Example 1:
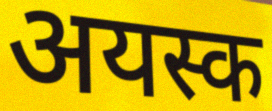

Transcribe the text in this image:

अयस्क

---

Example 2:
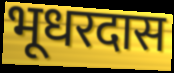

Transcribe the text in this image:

भूधरदास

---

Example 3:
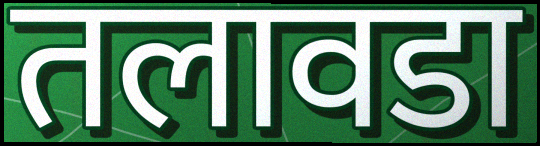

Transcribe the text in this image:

तलावडा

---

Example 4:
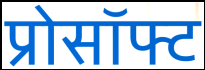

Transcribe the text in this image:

प्रोसॉफ्ट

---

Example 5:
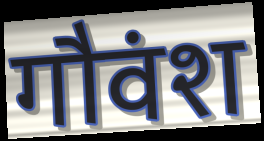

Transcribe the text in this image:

गौवंश